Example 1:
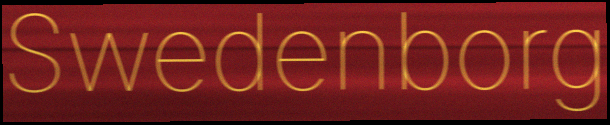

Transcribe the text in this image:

Swedenborg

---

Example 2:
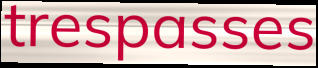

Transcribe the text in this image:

trespasses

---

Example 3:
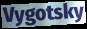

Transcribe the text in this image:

Vygotsky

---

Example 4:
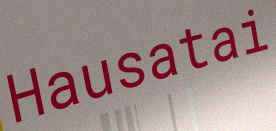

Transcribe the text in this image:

Hausatai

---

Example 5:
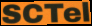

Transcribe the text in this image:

SCTel